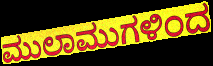
ಮುಲಾಮುಗಳಿಂದ